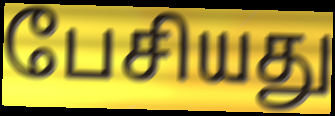
பேசியது